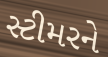
સ્ટીમરને